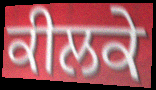
ਕੀਲਕੇ